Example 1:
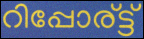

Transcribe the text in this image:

റിപ്പോര്ട്ട്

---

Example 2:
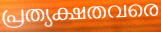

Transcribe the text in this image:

പ്രത്യക്ഷതവരെ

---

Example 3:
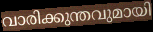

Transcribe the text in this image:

വാരിക്കുന്തവുമായി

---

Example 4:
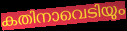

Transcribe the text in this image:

കതിനാവെടിയും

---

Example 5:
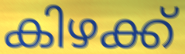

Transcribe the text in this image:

കിഴക്ക്